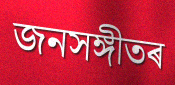
জনসঙ্গীতৰ